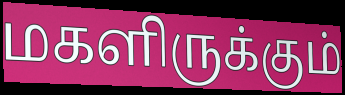
மகளிருக்கும்